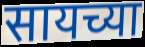
सायच्या